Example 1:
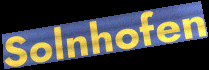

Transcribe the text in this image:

Solnhofen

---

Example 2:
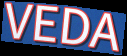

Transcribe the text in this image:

VEDA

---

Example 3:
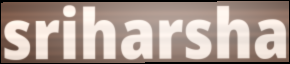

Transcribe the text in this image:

sriharsha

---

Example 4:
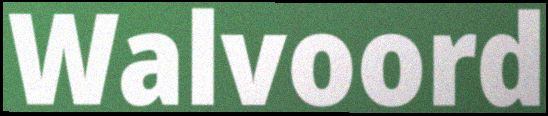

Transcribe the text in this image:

Walvoord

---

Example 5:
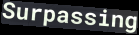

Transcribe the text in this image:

Surpassing